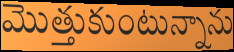
మొత్తుకుంటున్నాను